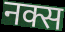
नक्स